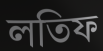
লতিফ